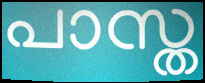
പാസ്ത